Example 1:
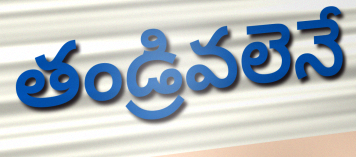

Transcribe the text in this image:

తండ్రివలెనే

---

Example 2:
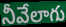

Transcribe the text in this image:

నీవేలాగు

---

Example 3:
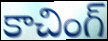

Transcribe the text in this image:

కాచింగ్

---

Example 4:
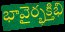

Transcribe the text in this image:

భావైర్భక్తిభి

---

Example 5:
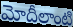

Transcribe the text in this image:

మోదీలాంటి